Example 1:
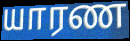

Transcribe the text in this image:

யாரண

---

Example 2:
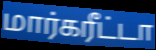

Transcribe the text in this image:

மார்கரீட்டா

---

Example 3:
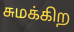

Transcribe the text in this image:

சுமக்கிற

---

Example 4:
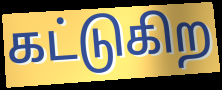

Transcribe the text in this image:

கட்டுகிற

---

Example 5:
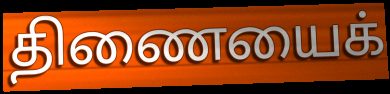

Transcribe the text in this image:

திணையைக்